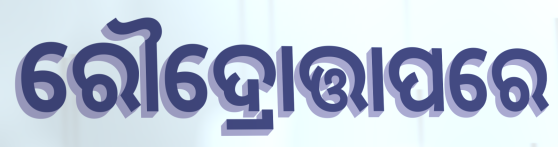
ରୌଦ୍ରୋତ୍ତାପରେ